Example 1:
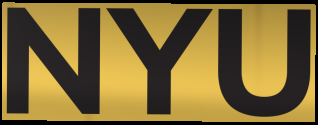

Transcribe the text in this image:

NYU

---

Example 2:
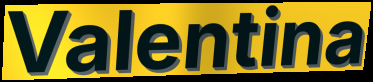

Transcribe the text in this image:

Valentina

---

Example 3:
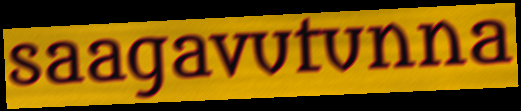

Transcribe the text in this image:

saagavutunna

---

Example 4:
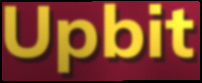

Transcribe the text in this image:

Upbit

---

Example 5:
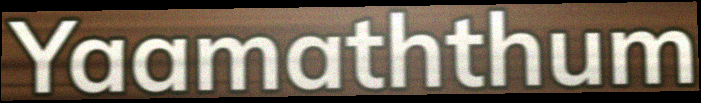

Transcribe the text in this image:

Yaamaththum